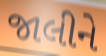
જાલીને